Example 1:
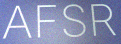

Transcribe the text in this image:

AFSR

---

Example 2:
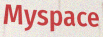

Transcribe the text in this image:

Myspace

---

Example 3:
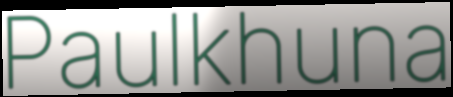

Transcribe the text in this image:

Paulkhuna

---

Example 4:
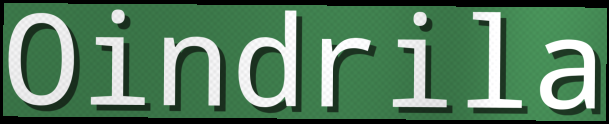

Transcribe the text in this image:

Oindrila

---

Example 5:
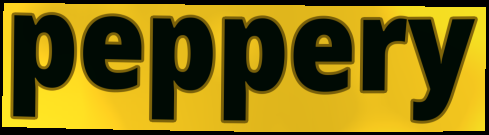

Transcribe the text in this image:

peppery